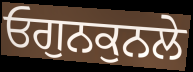
ਓਗੁਨਕੁਨਲੇ